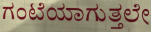
ಗಂಟೆಯಾಗುತ್ತಲೇ